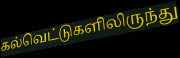
கல்வெட்டுகளிலிருந்து